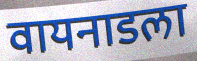
वायनाडला